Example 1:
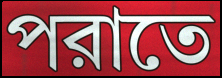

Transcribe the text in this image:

পরাতে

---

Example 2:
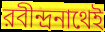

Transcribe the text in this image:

রবীন্দ্রনাথেই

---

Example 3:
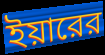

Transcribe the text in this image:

ইয়ারের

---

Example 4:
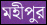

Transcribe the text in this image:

মহীপুর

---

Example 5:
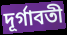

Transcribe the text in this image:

দূর্গাবতী